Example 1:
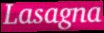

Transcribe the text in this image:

Lasagna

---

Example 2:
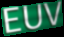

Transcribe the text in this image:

EUV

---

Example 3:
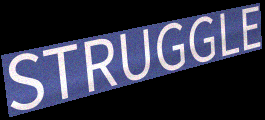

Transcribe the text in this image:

STRUGGLE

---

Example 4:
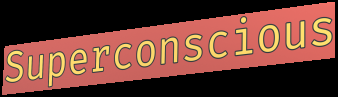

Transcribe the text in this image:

Superconscious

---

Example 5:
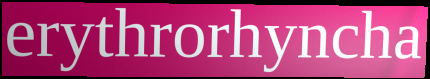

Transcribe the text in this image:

erythrorhyncha